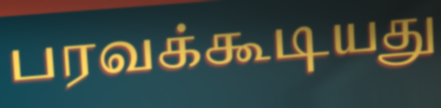
பரவக்கூடியது